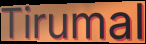
Tirumal